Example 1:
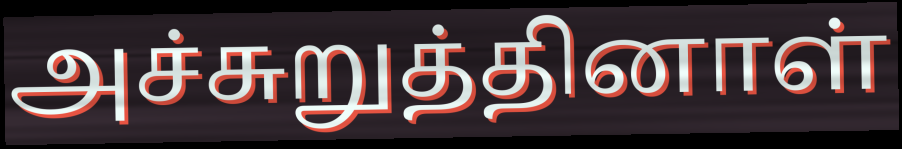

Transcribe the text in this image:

அச்சுறுத்தினாள்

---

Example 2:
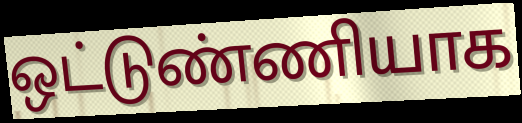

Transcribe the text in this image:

ஒட்டுண்ணியாக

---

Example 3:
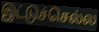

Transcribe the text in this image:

இட்டுச்செல்ல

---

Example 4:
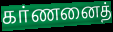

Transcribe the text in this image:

கர்ணனைத்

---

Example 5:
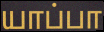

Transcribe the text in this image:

யாப்பா